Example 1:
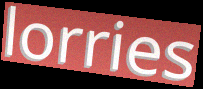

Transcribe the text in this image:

lorries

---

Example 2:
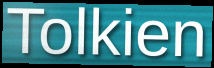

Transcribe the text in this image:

Tolkien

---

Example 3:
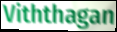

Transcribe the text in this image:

Viththagan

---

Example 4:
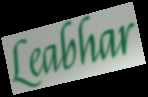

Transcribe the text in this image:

Leabhar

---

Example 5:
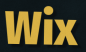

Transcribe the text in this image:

Wix